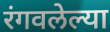
रंगवलेल्या